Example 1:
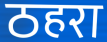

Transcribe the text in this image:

ठहरा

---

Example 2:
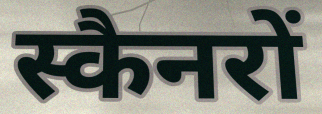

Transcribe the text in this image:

स्कैनरों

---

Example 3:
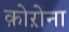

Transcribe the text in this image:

क़ोऱोना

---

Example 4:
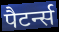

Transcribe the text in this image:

पैटर्न्स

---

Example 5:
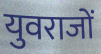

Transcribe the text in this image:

युवराजों